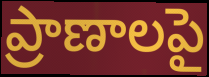
ప్రాణాలపై